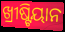
ଖ୍ରୀଷ୍ଟିୟାନ